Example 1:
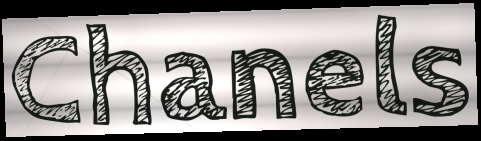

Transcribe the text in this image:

Chanels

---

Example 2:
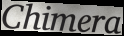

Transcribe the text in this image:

Chimera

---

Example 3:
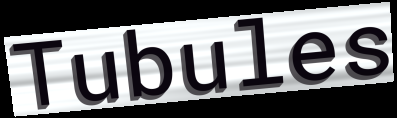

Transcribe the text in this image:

Tubules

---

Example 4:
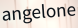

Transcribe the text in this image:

angelone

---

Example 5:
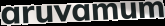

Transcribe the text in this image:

aruvamum